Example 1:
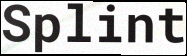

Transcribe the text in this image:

Splint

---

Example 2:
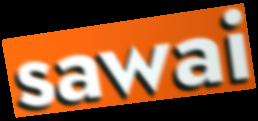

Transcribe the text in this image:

sawai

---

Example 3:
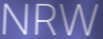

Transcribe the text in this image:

NRW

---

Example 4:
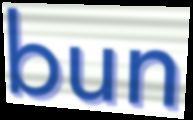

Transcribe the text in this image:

bun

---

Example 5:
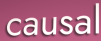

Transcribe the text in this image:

causal